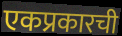
एकप्रकारची